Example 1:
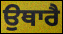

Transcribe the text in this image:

ਉਥਾਰੈ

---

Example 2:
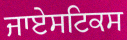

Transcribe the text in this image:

ਜਾਏਸਟਿਕਸ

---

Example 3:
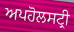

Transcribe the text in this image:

ਅਪਹੋਲਸਟ੍ਰੀ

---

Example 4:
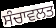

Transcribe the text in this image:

ਸੰਚਾਵਲਤ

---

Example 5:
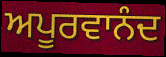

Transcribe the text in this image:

ਅਪੂਰਵਾਨੰਦ